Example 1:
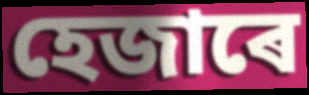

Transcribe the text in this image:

হেজাৰে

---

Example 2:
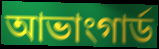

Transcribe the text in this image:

আভাংগাৰ্ড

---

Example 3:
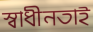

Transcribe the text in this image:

স্বাধীনতাই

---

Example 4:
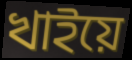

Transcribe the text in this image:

খাইয়ে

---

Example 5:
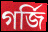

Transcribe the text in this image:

গৰ্জি